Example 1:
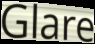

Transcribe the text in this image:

Glare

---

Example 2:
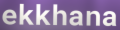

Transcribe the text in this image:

ekkhana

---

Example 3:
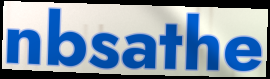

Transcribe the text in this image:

nbsathe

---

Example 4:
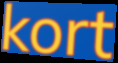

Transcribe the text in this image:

kort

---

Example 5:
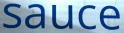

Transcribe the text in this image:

sauce